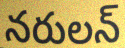
నరులన్